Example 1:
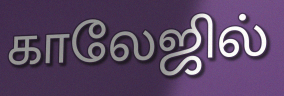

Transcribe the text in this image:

காலேஜில்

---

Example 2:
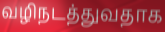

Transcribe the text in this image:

வழிநடத்துவதாக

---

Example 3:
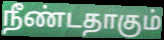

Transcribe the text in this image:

நீண்டதாகும்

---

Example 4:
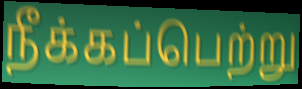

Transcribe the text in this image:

நீக்கப்பெற்று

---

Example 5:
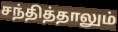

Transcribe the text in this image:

சந்தித்தாலும்